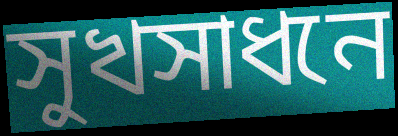
সুখসাধনে